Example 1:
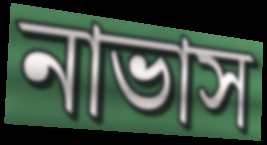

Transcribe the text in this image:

নাভাস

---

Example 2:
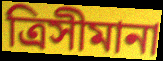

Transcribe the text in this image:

ত্রিসীমানা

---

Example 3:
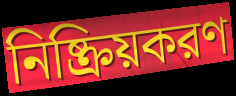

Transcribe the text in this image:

নিষ্ক্রিয়করণ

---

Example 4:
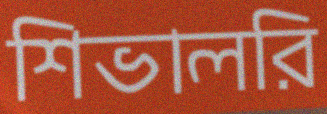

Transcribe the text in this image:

শিভালরি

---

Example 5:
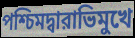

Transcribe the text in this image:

পশ্চিমদ্বারাভিমুখে